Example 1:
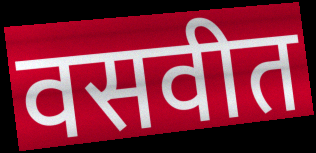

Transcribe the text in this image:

वसवीत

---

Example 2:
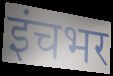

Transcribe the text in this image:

इंचभर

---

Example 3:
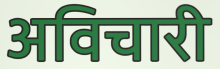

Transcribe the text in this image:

अविचारी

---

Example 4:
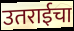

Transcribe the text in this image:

उतराईचा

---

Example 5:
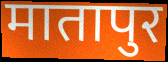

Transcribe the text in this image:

मातापुर